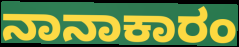
ನಾನಾಕಾರಂ